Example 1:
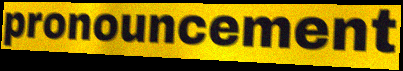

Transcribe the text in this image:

pronouncement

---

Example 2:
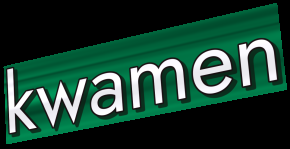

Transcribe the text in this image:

kwamen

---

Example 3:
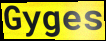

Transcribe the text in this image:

Gyges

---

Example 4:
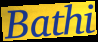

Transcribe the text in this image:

Bathi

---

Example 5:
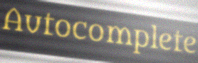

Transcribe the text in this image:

Autocomplete